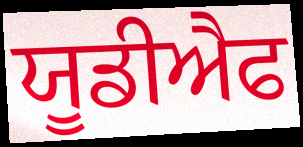
ਯੂਡੀਐਫ